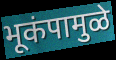
भूकंपामुळे